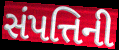
સંપત્તિની